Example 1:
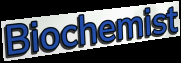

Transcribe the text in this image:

Biochemist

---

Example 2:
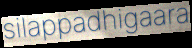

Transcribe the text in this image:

silappadhigaara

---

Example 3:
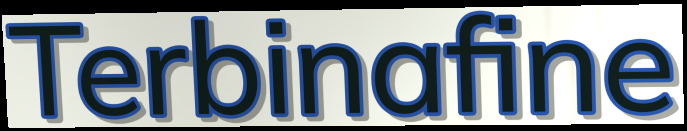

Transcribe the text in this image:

Terbinafine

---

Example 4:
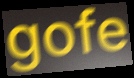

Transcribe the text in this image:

gofe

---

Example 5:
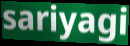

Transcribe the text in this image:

sariyagi